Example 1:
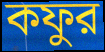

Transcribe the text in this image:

কফুর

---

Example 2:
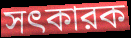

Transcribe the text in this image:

সৎকারক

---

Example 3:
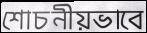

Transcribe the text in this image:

শোচনীয়ভাবে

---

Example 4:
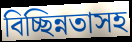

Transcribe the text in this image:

বিচ্ছিন্নতাসহ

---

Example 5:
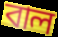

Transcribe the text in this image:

বাল